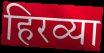
हिरव्या